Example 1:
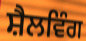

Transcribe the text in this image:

ਸ਼ੈਲਵਿੰਗ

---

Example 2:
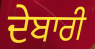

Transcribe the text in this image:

ਦੇਬਾਰੀ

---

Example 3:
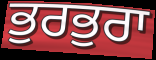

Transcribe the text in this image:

ਭੁਰਭੁਰਾ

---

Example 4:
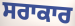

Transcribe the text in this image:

ਸਰਾਕਾਰ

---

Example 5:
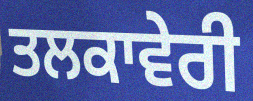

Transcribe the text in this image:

ਤਲਕਾਵੇਰੀ